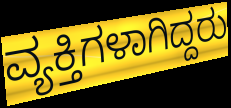
ವ್ಯಕ್ತಿಗಳಾಗಿದ್ದರು